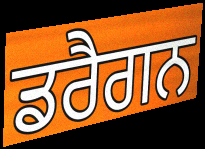
ਡਰੈਗਨ